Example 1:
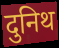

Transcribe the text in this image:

दुनिथ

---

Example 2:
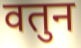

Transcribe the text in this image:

वतुन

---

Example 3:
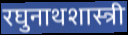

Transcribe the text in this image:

रघुनाथशास्त्री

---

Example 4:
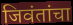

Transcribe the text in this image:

जिवंतांचा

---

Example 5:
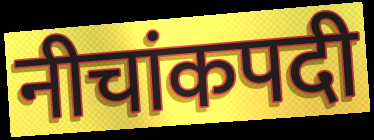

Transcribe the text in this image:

नीचांकपदी